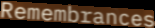
Remembrances